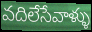
వదిలేసేవాళ్ళు